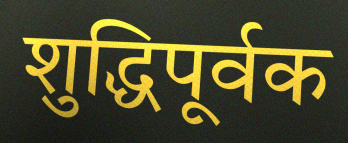
शुद्धिपूर्वक